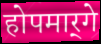
होपमार्गे